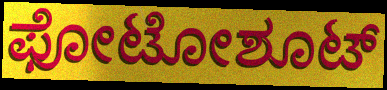
ಫೋಟೋಶೂಟ್